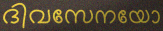
ദിവസേനയോ